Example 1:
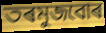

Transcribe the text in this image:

তৰমুজবোৰ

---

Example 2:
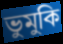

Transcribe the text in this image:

ভুমুকি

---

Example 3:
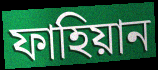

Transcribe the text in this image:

ফাহিয়ান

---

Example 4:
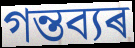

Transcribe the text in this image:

গন্তব্যৰ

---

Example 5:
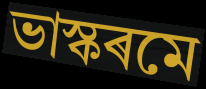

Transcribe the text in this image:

ভাস্কৰমে